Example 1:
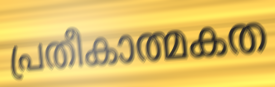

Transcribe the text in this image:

പ്രതീകാത്മകത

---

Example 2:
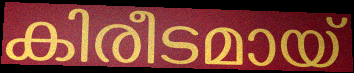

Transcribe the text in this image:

കിരീടമായ്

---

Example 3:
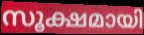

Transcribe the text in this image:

സൂക്ഷമായി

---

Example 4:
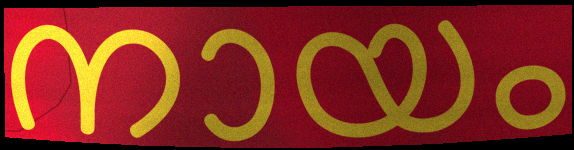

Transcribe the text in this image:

നായം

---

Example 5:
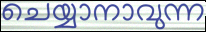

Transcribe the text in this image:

ചെയ്യാനാവുന്ന